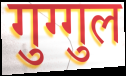
गुग्‍गुल